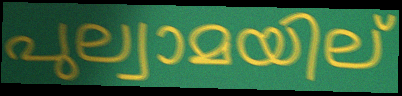
പുല്വാമയില്